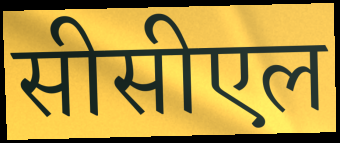
सीसीएल